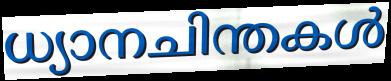
ധ്യാനചിന്തകൾ